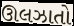
ઊલઝાતો